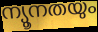
ന്യൂനതയും